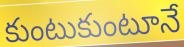
కుంటుకుంటూనే